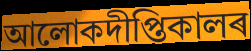
আলোকদীপ্তিকালৰ